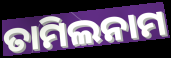
ତାମିଲନାମ